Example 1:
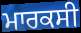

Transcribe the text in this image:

ਮਾਰਕਸੀ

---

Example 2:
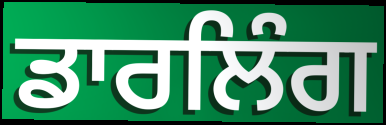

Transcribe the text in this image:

ਡਾਰਲਿੰਗ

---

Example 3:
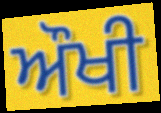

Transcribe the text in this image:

ਔਖੀ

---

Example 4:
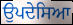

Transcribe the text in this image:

ਉਪਦੇਸਿਆ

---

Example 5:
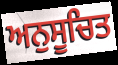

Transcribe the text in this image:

ਅਨੁਸੂਚਿਤ